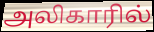
அலிகாரில்